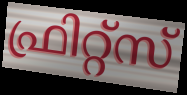
ഫ്രിറ്റ്സ്